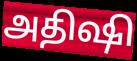
அதிஷி